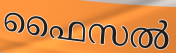
ഫൈസൽ